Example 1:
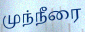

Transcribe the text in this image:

முந்நீரை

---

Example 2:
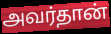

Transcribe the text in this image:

அவர்தான்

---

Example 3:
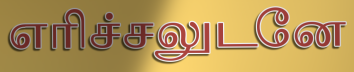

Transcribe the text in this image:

எரிச்சலுடனே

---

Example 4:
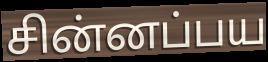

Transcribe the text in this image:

சின்னப்பய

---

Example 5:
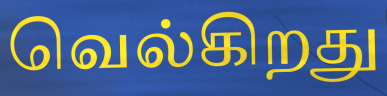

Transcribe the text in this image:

வெல்கிறது